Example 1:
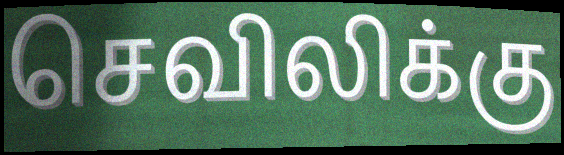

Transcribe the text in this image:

செவிலிக்கு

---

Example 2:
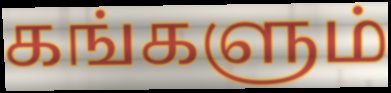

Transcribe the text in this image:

கங்களும்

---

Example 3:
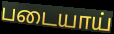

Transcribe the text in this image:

படையாய்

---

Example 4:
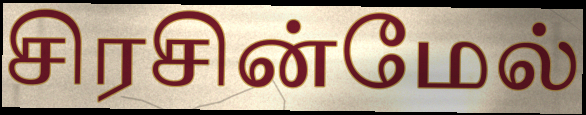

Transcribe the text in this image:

சிரசின்மேல்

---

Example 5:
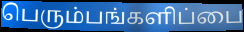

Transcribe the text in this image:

பெரும்பங்களிப்பை